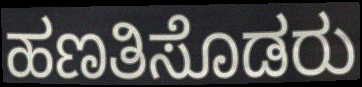
ಹಣತಿಸೊಡರು